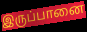
இருப்பானை